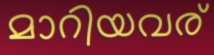
മാറിയവര്